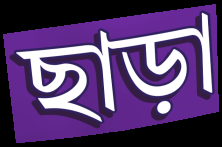
ছাড়া